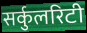
सर्कुलरिटी